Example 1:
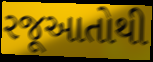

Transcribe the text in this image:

રજૂઆતોથી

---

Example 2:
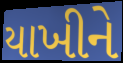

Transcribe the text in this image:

યાખીને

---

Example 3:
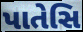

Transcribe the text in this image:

પાતેસિ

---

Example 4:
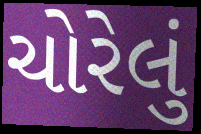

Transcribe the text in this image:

ચોરેલું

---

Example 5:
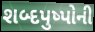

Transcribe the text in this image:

શબ્દપુષ્પોની